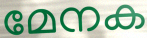
മേനക